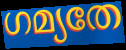
ഗമ്യതേ